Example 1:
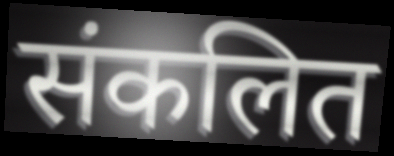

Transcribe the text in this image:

संकलित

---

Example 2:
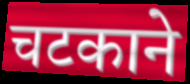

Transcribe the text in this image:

चटकाने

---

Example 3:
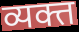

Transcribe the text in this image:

व्यक्त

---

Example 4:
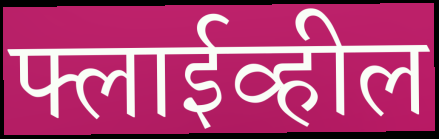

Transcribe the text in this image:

फ्लाईव्हील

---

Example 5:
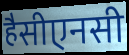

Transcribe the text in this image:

हैसीएनसी